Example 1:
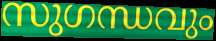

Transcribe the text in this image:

സുഗന്ധവും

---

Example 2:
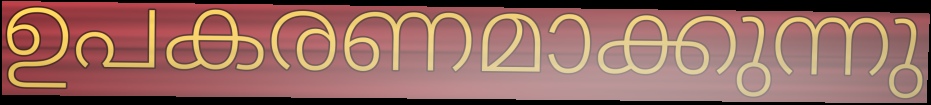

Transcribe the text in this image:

ഉപകരണമാക്കുന്നു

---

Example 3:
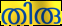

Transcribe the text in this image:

തിരു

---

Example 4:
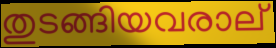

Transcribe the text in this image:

തുടങ്ങിയവരാല്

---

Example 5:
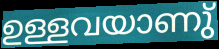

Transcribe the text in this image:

ഉള്ളവയാണു്